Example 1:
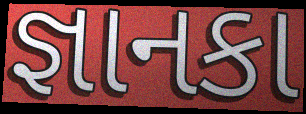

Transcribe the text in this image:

જ્ઞાનકા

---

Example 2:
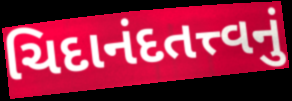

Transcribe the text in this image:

ચિદાનંદતત્ત્વનું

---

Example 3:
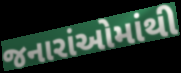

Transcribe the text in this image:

જનારાંઓમાંથી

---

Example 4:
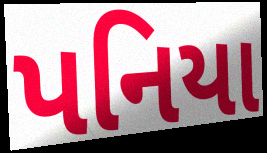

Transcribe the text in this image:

પનિયા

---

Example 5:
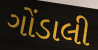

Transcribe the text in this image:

ગોંડાલી